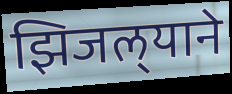
झिजल्याने